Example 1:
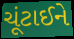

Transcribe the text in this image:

ચૂંટાઈને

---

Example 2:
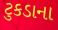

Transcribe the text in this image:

ટુકડાના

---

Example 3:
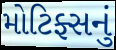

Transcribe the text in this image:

મોટિફ્સનું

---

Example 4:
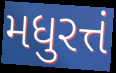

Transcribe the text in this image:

મધુરત્તં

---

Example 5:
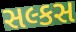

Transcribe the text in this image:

સલ્કસ